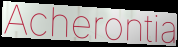
Acherontia